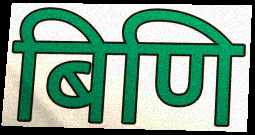
बिणि